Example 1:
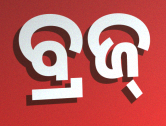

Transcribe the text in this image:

ବ୍ରଜ୍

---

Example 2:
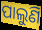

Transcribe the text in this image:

ପାଲୁଣି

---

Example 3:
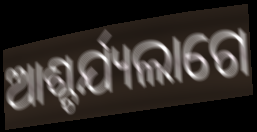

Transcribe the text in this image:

ଆଶ୍ଚର୍ଯ୍ୟଲାଗେ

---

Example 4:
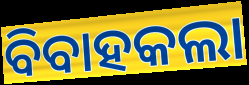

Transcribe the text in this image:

ବିବାହକଲା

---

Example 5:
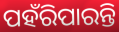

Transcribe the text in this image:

ପହଁରିପାରନ୍ତି